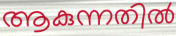
ആകുന്നതിൽ